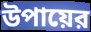
উপায়ের